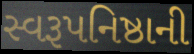
સ્વરૂપનિષ્ઠાની